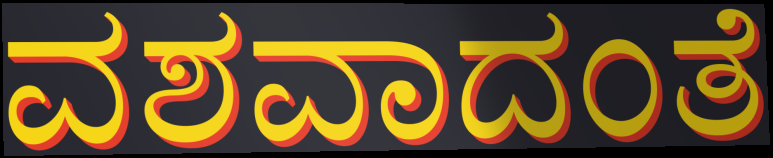
ವಶವಾದಂತೆ